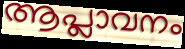
ആപ്ലാവനം